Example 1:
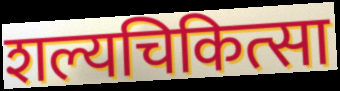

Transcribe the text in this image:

शल्‍यचिकित्‍सा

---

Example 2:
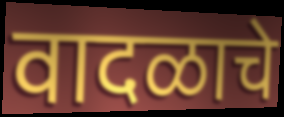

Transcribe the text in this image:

वादळाचे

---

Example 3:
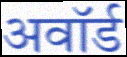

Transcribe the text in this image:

अवॉर्ड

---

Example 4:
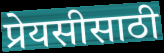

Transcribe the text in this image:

प्रेयसीसाठी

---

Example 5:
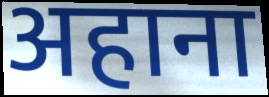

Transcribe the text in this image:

अहाना